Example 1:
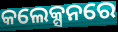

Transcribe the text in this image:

କଲେକ୍ସନରେ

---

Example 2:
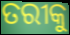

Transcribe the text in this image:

ତରୀକୁ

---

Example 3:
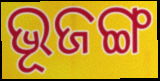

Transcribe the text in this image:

ଭୂଜଙ୍ଗ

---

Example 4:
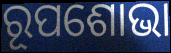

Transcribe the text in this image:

ରୂପଶୋଭା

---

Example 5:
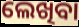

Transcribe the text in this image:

ଲେଖିବା